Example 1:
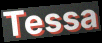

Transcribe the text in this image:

Tessa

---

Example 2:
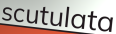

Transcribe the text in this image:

scutulata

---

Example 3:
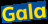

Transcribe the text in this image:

Gala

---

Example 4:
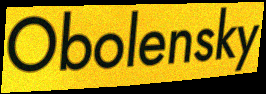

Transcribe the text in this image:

Obolensky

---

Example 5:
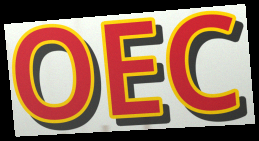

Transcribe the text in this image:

OEC